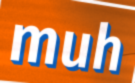
muh